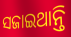
ସଜାଇଥାନ୍ତି